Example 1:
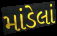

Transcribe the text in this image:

માંડેલાં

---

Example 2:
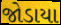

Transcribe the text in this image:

જોડાયા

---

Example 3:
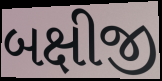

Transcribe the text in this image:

બક્ષીજી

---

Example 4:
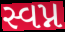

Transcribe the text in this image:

સ્વપ્ન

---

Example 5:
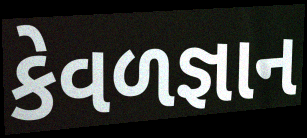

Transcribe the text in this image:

કેવળજ્ઞાન